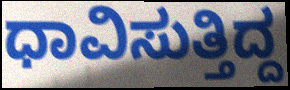
ಧಾವಿಸುತ್ತಿದ್ದ